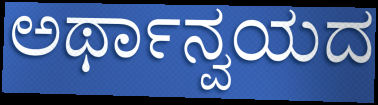
ಅರ್ಥಾನ್ವಯದ